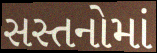
સસ્તનોમાં